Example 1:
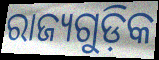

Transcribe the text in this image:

ରାଜ୍ୟଗୁଡ଼ିକ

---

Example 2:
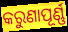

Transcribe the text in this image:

କରୁଣାପୂର୍ଣ୍ଣ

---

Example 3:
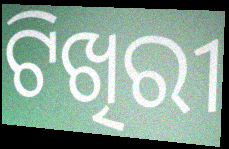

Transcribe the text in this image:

ଟିଖିରୀ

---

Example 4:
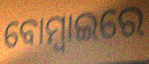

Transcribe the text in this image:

ବୋମ୍ୱାଇରେ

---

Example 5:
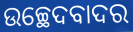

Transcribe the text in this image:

ଉଚ୍ଛେଦବାଦର